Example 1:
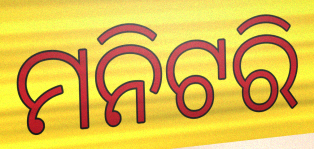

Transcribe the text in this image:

ମନିଟରି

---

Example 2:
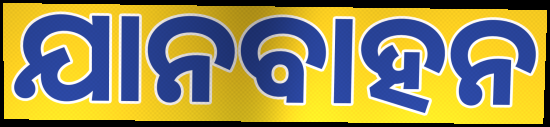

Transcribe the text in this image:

ଯାନବାହନ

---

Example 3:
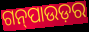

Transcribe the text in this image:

ଗନ୍‍ପାଉଡ଼ର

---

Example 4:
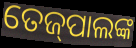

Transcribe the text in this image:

ତେଜ୍‌ପାଲଙ୍କ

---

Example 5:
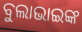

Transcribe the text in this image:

ବୁଲାଭାଇଙ୍କ